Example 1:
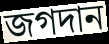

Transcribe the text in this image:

জগদান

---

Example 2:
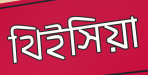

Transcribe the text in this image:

থিইসিয়া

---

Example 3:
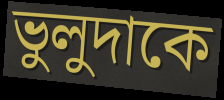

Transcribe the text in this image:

ভুলুদাকে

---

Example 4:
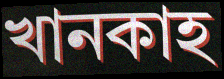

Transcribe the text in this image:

খানকাহ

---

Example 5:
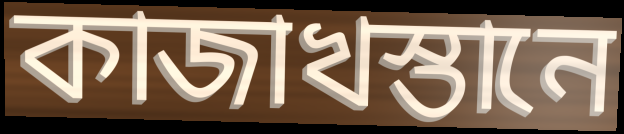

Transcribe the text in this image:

কাজাখস্তানে